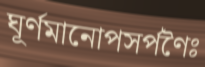
ঘূর্ণমানোপসর্পণৈঃ